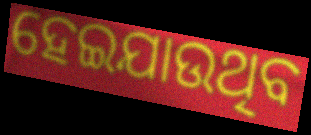
ହେଇଯାଉଥିବ